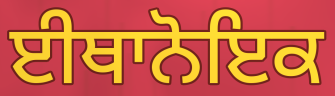
ਈਥਾਨੋਇਕ